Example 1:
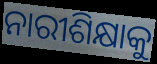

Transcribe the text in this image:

ନାରୀଶିକ୍ଷାକୁ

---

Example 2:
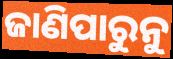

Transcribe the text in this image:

ଜାଣିପାରୁନୁ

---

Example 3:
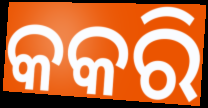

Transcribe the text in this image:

କକରି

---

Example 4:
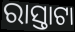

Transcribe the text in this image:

ରାସ୍ତାଟା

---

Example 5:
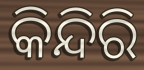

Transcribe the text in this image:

କିନ୍ଦିରି